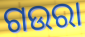
ଗଉରା